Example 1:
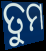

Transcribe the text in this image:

ତୁମ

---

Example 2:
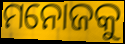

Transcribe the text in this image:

ମନୋଜକୁ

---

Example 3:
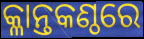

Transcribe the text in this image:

କ୍ଳାନ୍ତକଣ୍ଠରେ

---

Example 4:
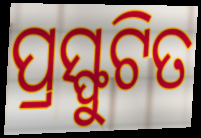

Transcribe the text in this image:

ପ୍ରସ୍ଫୁଟିତ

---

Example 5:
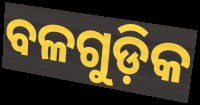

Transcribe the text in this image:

ବଳଗୁଡ଼ିକ